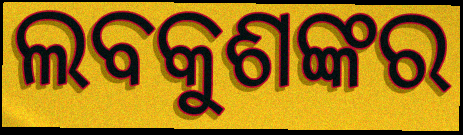
ଲବକୁଶଙ୍କର